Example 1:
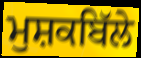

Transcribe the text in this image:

ਮੁਸ਼ਕਬਿੱਲੇ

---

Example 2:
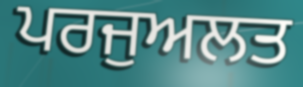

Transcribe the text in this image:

ਪਰਜੁਅਲਤ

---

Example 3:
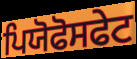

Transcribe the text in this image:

ਪਿਯੋਫੋਸਫੇਟ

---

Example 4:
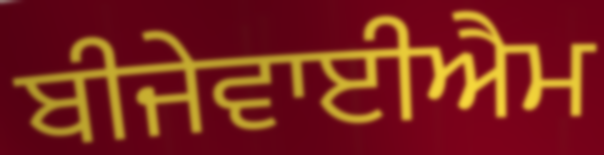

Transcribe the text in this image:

ਬੀਜੇਵਾਈਐਮ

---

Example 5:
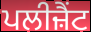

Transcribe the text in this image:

ਪਲੀਜ਼ੈਂਟ